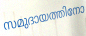
സമുദായത്തിനോ